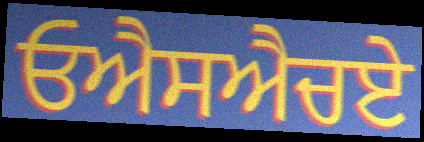
ਓਐਸਐਚਏ